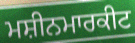
ਮਸ਼ੀਨਮਾਰਕੀਟ